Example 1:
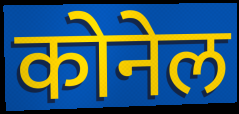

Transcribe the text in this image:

कोनेल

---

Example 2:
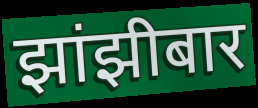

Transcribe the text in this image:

झांझीबार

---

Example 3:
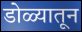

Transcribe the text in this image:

डोळ्यातून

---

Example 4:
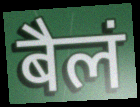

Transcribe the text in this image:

बैलं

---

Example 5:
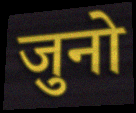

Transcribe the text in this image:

जुनो